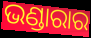
ଭଣ୍ଡାରାର